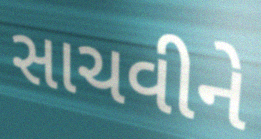
સાચવીને